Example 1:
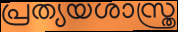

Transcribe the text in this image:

പ്രത്യയശാസ്ത്ര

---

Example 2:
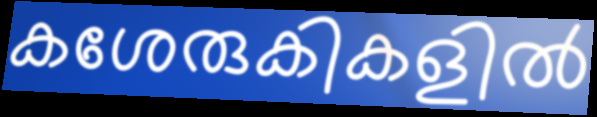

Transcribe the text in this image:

കശേരുകികളിൽ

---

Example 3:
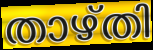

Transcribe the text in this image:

താഴ്തി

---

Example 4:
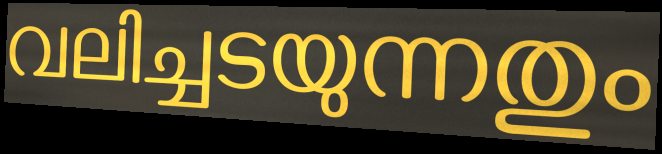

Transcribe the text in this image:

വലിച്ചടയുന്നതും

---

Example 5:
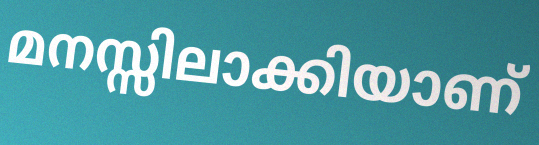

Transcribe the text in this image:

മനസ്സിലാക്കിയാണ്